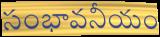
సంభావనీయం